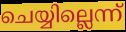
ചെയ്യില്ലെന്ന്